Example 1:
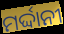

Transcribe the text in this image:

ମର୍ଦ୍ଦାନୀ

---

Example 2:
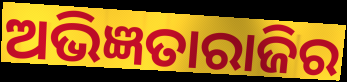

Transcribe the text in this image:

ଅଭିଜ୍ଞତାରାଜିର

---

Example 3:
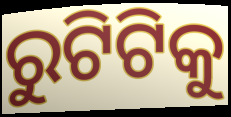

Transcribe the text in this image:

ରୁଟିଟିକୁ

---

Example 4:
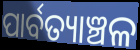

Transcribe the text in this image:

ପାର୍ବତ୍ୟାଞ୍ଚଳ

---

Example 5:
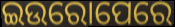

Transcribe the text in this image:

ଇଉରୋପେରେ